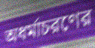
অধর্মাচরণের